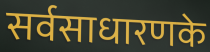
सर्वसाधारणके